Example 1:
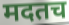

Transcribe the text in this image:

मदतच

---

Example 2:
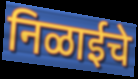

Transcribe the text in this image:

निळाईचे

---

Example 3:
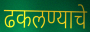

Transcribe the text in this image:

ढकलण्याचे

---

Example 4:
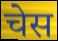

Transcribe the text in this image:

चेस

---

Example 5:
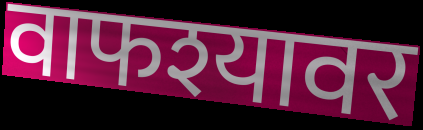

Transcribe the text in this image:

वाफश्यावर